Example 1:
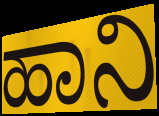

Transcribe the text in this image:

ಹಾನಿ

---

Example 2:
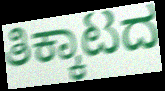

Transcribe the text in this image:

ತಿಕ್ಕಾಟದ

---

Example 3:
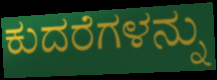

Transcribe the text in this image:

ಕುದರೆಗಳನ್ನು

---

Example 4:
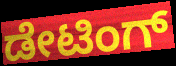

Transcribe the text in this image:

ಡೇಟಿಂಗ್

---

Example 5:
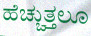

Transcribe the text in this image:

ಹೆಚ್ಚುತ್ತಲೂ